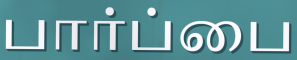
பார்ப்பை